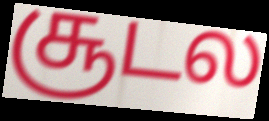
சூடல